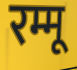
रम्मू